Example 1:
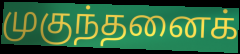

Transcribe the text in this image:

முகுந்தனைக்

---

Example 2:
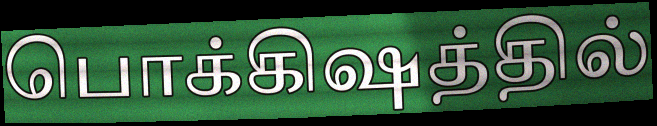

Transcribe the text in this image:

பொக்கிஷத்தில்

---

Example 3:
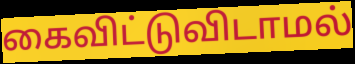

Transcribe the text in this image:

கைவிட்டுவிடாமல்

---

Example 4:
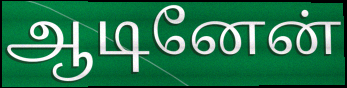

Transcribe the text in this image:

ஆடினேன்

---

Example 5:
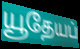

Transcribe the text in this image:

யூதேயப்